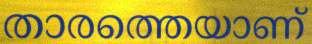
താരത്തെയാണ്